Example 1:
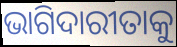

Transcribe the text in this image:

ଭାଗିଦାରୀତାକୁ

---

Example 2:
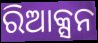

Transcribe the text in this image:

ରିଆକ୍ସନ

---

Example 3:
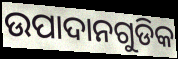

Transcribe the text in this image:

ଉପାଦାନଗୁଡିକ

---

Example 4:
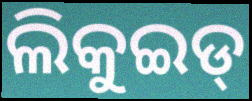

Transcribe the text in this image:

ଲିକୁଇଡ୍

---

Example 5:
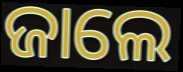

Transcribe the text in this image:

ଜାଲେ